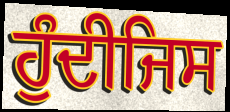
ਹੁੰਦੀਜਿਸ